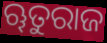
ୠତୁରାଜ